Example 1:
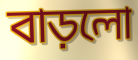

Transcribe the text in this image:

বাড়লো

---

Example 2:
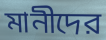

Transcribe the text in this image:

মানীদের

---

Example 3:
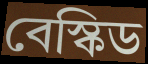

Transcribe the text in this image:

বেস্কিড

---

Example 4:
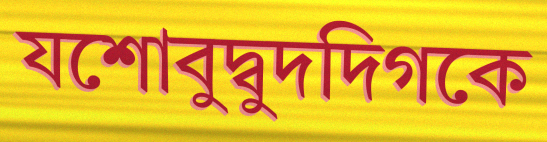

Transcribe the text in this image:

যশোবুদ্বুদদিগকে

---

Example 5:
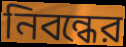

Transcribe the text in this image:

নিবন্ধের